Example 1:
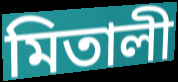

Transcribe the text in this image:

মিতালী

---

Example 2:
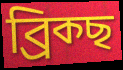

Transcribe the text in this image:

ব্ৰিক্ছ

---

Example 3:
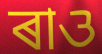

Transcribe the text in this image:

ৰাও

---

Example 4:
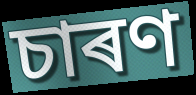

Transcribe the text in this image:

চাৰণ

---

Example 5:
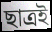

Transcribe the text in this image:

ছাত্ৰই